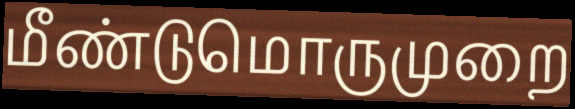
மீண்டுமொருமுறை